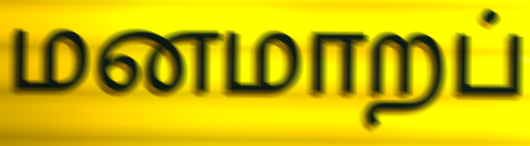
மனமாறப்